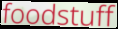
foodstuff